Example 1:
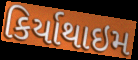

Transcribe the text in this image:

કિર્યાથાઇમ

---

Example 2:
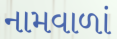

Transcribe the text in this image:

નામવાળાં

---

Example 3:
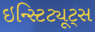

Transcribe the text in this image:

ઇન્સ્ટિટ્યૂટ્સ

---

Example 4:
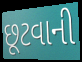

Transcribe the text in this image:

છૂટવાની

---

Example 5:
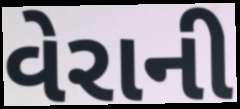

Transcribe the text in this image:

વેરાની